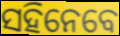
ସହିନେବେ